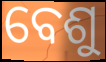
ବେଶୁ